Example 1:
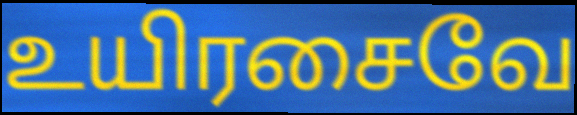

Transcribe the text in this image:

உயிரசைவே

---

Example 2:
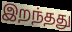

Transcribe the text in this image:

இறந்தது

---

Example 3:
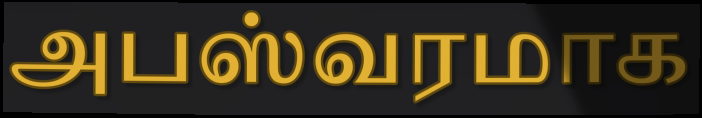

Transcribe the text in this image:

அபஸ்வரமாக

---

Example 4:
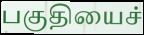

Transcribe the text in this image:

பகுதியைச்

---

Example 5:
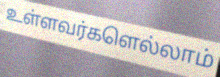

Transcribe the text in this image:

உள்ளவர்களெல்லாம்